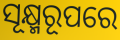
ସୂକ୍ଷ୍ମରୂପରେ